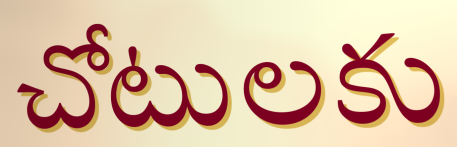
చోటులకు